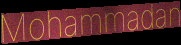
Mohammadan